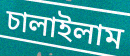
চালাইলাম